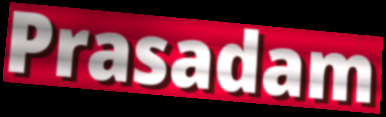
Prasadam